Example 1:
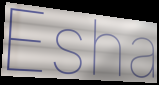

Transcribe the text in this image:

Esha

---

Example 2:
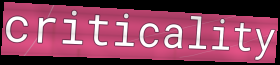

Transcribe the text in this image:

criticality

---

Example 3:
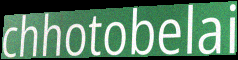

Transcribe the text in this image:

chhotobelai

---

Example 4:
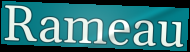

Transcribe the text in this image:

Rameau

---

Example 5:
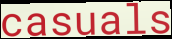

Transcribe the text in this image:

casuals